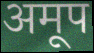
अमूप